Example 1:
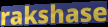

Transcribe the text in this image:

rakshase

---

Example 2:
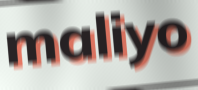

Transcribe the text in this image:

maliyo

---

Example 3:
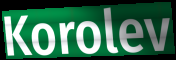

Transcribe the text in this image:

Korolev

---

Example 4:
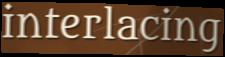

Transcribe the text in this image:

interlacing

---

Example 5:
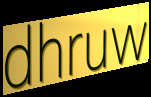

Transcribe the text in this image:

dhruw